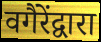
वगैरेंद्वारा